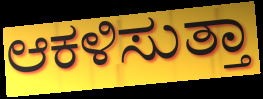
ಆಕಳಿಸುತ್ತಾ